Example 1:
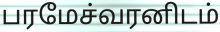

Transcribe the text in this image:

பரமேச்வரனிடம்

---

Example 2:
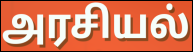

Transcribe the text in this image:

அரசியல்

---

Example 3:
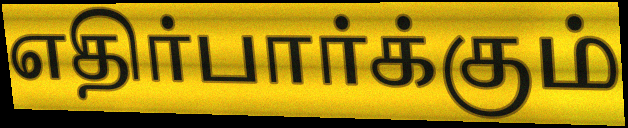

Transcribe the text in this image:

எதிர்பார்க்கும்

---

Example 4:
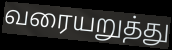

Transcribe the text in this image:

வரையறுத்து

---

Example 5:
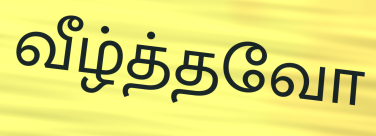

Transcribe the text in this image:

வீழ்த்தவோ